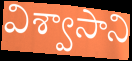
విశ్వాసాని